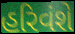
હરિવંશે